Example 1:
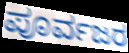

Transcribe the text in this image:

ಪೂರ್ವಜರ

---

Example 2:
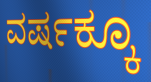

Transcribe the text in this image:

ವರ್ಷಕ್ಕೂ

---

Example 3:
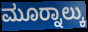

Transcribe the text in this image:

ಮೂರ‍್ನಾಲ್ಕು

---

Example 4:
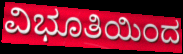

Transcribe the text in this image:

ವಿಭೂತಿಯಿಂದ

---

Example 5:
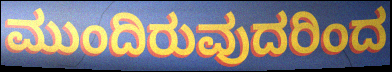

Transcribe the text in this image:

ಮುಂದಿರುವುದರಿಂದ